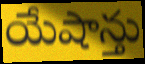
యేషాన్తు